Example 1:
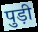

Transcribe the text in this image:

पुड़ी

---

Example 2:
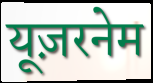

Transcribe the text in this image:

यूज़रनेम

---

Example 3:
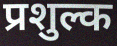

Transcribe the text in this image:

प्रशुल्क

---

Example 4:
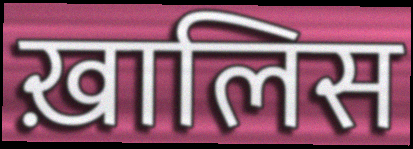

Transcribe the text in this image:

ख़ालिस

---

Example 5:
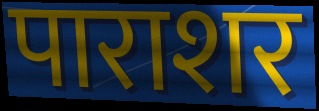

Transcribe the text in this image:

पाराशर